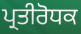
ਪ੍ਰਤੀਰੋਧਕ